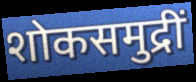
शोकसमुद्रीं